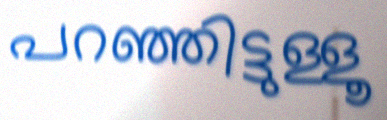
പറഞ്ഞിട്ടുള്ളൂ